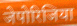
जेपोरिजिया